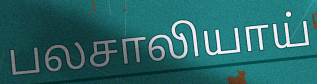
பலசாலியாய்